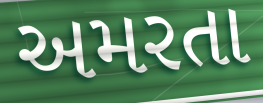
અમરતા